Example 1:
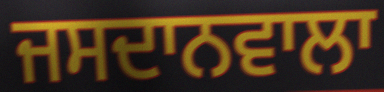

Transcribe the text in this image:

ਜਸਦਾਨਵਾਲਾ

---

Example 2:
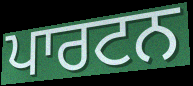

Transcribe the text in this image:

ਪਾਰਟਨ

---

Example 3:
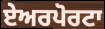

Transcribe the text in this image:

ਏਅਰਪੋਰਟਾ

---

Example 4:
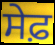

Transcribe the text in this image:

ਸੇਫ਼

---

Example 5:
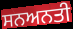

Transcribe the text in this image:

ਸਨਅਨਤੀ